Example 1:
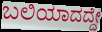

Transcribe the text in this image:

ಬಲಿಯಾದದ್ದೇ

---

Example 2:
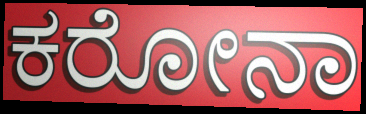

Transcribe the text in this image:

ಕರೋನಾ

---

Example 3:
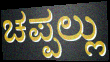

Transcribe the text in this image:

ಚಪ್ಪಲ್ಲು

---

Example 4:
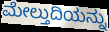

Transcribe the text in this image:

ಮೇಲ್ತುದಿಯನ್ನು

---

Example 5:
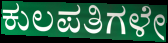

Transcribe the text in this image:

ಕುಲಪತಿಗಳೇ